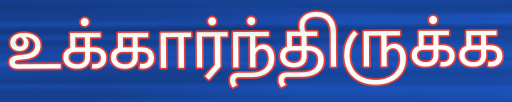
உக்கார்ந்திருக்க